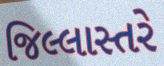
જિલ્લાસ્તરે